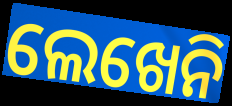
ଲେଖେନି